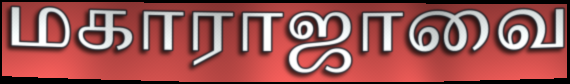
மகாராஜாவை